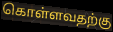
கொள்ளவதற்கு